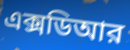
এক্সডিআর